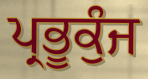
ਪ੍ਰਭੂਕੁੰਜ